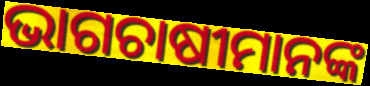
ଭାଗଚାଷୀମାନଙ୍କ